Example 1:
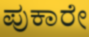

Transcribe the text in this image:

ಪುಕಾರೇ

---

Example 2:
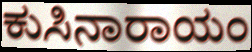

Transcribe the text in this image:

ಕುಸಿನಾರಾಯಂ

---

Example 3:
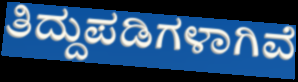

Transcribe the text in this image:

ತಿದ್ದುಪಡಿಗಳಾಗಿವೆ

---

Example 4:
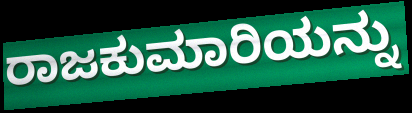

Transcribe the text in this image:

ರಾಜಕುಮಾರಿಯನ್ನು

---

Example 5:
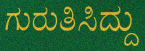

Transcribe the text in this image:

ಗುರುತಿಸಿದ್ದು